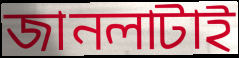
জানলাটাই